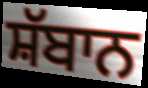
ਸ਼ੱਬਾਨ